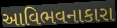
આવિભવનાકારા